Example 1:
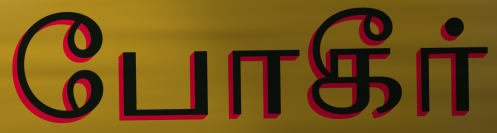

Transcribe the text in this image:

போகீர்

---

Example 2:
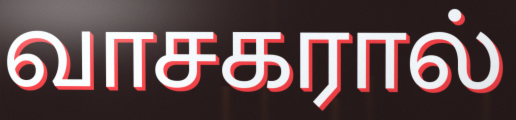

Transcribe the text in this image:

வாசகரால்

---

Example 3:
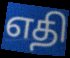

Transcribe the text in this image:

எதி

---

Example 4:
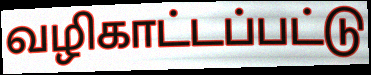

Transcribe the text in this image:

வழிகாட்டப்பட்டு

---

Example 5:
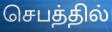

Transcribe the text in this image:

செபத்தில்